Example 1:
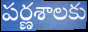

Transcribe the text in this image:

పర్ణశాలకు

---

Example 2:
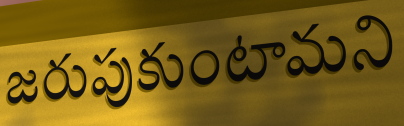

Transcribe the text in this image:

జరుపుకుంటామని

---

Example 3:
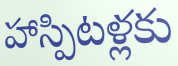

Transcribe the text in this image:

హాస్పిటళ్లకు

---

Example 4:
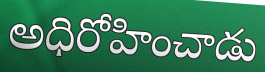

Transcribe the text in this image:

అధిరోహించాడు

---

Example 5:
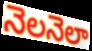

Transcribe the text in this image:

నెలనెలా